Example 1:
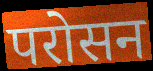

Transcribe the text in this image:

परोसन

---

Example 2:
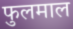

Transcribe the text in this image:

फुलमाल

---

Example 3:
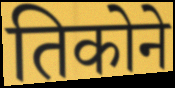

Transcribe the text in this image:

तिकोने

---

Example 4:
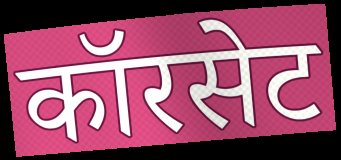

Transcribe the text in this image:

कॉरसेट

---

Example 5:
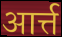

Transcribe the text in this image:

आर्त्त